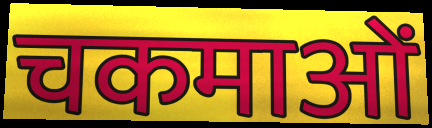
चकमाओं